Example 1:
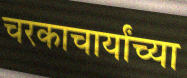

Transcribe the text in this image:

चरकाचार्यांच्या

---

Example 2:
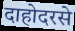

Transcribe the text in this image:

दाहोदरसे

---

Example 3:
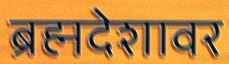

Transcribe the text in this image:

ब्रह्मदेशावर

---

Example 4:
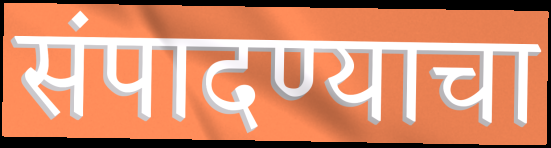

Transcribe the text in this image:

संपादण्याचा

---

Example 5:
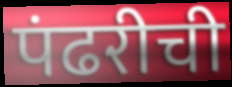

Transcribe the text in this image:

पंढरीची